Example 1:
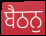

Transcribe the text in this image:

ਬੈਠਨੁ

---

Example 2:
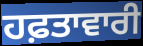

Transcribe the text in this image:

ਹਫ਼ਤਾਵਾਰੀ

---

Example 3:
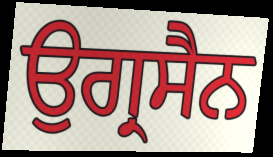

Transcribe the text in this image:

ਉਗ੍ਰਸੈਨ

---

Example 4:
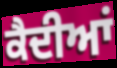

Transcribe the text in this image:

ਕੈਦੀਆਂ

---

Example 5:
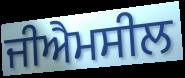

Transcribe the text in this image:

ਜੀਐਮਸੀਲ